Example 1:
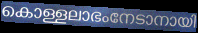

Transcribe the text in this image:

കൊള്ളലാഭംനേടാനായി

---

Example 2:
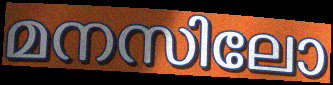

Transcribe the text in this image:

മനസിലോ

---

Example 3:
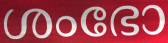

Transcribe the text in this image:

ശംഭോ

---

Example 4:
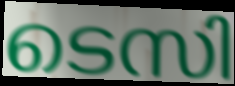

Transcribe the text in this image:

ടെസി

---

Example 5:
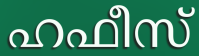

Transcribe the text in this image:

ഹഫീസ്